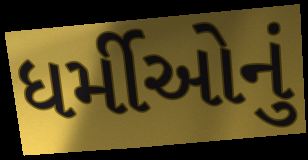
ધર્મીઓનું